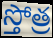
స్తోత్ర